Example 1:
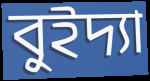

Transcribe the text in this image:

বুইদ্যা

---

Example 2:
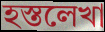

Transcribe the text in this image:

হস্তলেখা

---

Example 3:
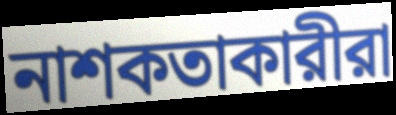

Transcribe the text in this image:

নাশকতাকারীরা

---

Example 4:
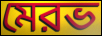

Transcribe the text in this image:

মেরভ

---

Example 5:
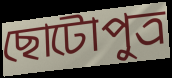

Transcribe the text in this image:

ছোটোপুত্র